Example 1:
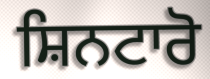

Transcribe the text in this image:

ਸ਼ਿਨਟਾਰੋ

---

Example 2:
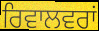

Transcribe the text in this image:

ਰਿਵਾਲਵਰਾਂ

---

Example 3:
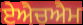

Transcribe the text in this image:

ਏਐਚਐਮ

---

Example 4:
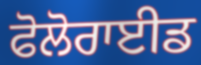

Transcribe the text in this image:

ਫੋਲੋਰਾਈਡ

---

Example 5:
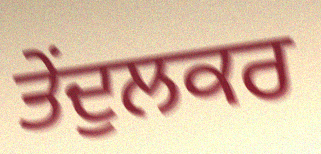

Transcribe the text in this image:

ਤੇਂਦੁਲਕਰ